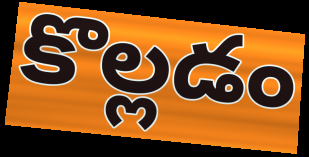
కొల్లడం